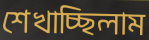
শেখাচ্ছিলাম